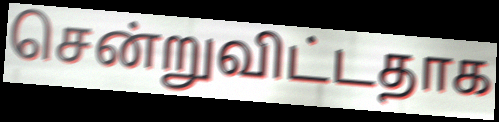
சென்றுவிட்டதாக